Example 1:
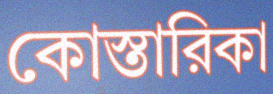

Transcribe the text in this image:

কোস্তারিকা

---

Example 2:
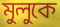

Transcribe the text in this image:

মুলুকে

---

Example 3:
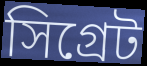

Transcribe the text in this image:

সিগ্রেট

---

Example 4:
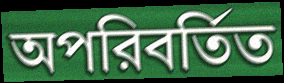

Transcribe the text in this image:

অপরিবর্তিত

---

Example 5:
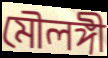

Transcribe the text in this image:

মৌলঙ্গী